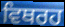
ਵਿਥਰਹ